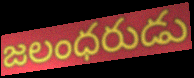
జలంధరుడు